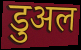
डुअल